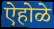
ऐहोळे